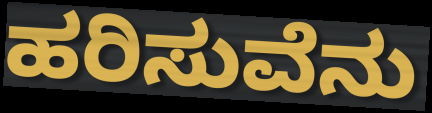
ಹರಿಸುವೆನು